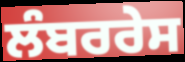
ਲੰਬਰਰੇਸ